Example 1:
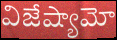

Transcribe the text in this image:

విజేష్యామో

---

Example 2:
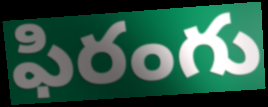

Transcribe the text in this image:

ఫిరంగు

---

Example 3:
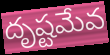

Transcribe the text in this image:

దృష్టమేవ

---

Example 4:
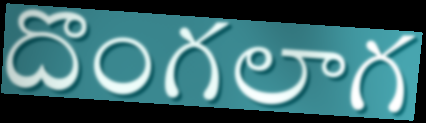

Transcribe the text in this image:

దొంగలాగ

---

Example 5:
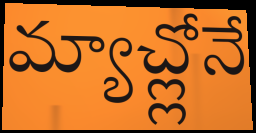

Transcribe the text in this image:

మ్యాచ్ల్లోనే